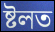
ষ্টলত